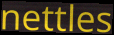
nettles